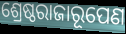
ଶ୍ରେଷ୍ଠରାଜାରୂପେଣ